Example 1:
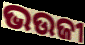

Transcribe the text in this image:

ଭଉଜୀ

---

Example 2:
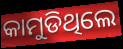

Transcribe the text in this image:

କାମୁଡିଥିଲେ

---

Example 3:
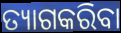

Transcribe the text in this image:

ତ୍ୟାଗକରିବା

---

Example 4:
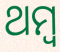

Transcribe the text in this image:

ଥମ୍ବ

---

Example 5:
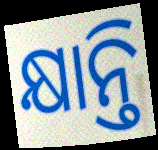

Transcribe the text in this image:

କ୍ଷାନ୍ତି